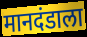
मानदंडाला